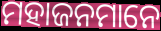
ମହାଜନମାନେ